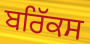
ਬਰਿੱਕਸ